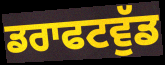
ਡਰਾਫਟਵੁੱਡ